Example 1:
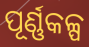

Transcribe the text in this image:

ପୂର୍ଣ୍ଣକଳ୍ପ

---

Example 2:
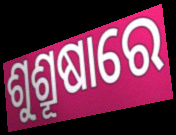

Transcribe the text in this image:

ଶୁଶ୍ରୂଷାରେ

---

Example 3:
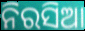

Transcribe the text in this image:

ନିରସିଆ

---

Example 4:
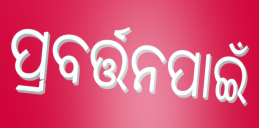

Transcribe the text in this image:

ପ୍ରବର୍ତ୍ତନପାଇଁ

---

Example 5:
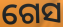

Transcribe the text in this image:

ଗେସ